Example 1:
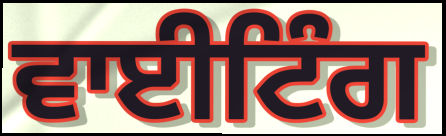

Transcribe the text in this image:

ਵਾਈਟਿੰਗ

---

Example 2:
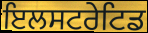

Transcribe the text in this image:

ਇਲਸਟਰੇਟਿਡ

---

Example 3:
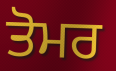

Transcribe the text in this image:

ਤੋਮਰ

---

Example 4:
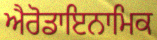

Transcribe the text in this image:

ਐਰੋਡਾਇਨਾਮਿਕ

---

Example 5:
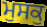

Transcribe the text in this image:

ਮੁਸਕੁ